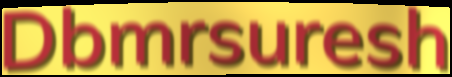
Dbmrsuresh